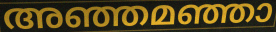
അഞ്ഞമഞ്ഞാ